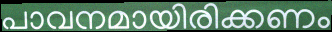
പാവനമായിരിക്കണം